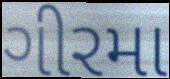
ગીરમા